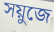
সয়ুজে